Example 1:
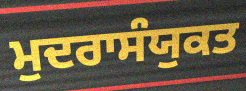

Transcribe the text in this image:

ਮੁਦਰਾਸੰਯੁਕਤ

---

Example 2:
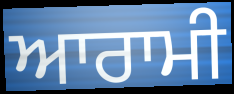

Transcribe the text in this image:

ਆਰਾਮੀ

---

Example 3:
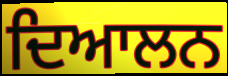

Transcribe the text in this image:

ਦਿਆਲਨ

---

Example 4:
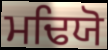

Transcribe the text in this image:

ਮਢਿਯੋ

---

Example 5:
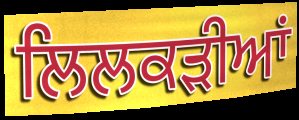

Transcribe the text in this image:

ਲਿਲਕੜੀਆਂ